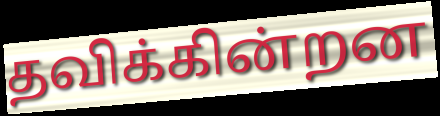
தவிக்கின்றன